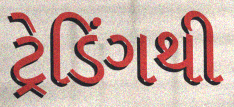
ટ્રેડિંગથી